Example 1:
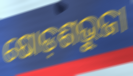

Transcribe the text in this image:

ଷୋଡ଼ଶଭୁଜା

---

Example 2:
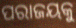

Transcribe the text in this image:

ପରାଜୟକୁ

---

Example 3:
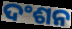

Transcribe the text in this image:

ଦଂଶନ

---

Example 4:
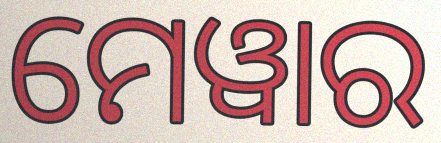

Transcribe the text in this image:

ମେୱାର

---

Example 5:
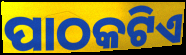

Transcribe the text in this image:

ପାଠକଟିଏ